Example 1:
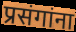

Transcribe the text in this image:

प्रसंगांना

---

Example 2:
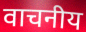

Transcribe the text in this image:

वाचनीय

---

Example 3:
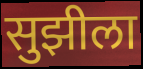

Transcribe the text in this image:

सुझीला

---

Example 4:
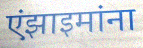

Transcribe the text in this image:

एंझाइमांना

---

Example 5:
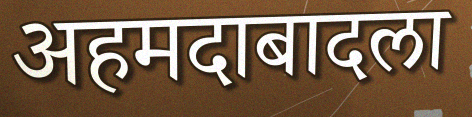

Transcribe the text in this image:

अहमदाबादला